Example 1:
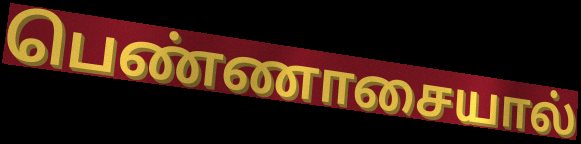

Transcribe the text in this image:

பெண்ணாசையால்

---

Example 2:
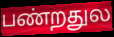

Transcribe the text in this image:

பண்றதுல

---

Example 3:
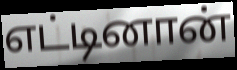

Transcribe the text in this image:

எட்டினான்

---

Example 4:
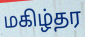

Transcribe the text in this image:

மகிழ்தர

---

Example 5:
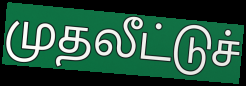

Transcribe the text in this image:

முதலீட்டுச்